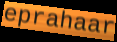
eprahaar